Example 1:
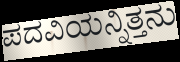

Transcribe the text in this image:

ಪದವಿಯನ್ನಿತ್ತನು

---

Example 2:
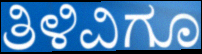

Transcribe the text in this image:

ತಿಳಿವಿಗೂ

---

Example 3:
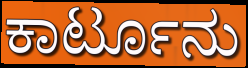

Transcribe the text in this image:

ಕಾರ್ಟೂನು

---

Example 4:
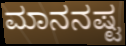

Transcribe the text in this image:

ಮಾನನಷ್ಟ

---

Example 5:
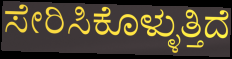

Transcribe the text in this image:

ಸೇರಿಸಿಕೊಳ್ಳುತ್ತಿದೆ